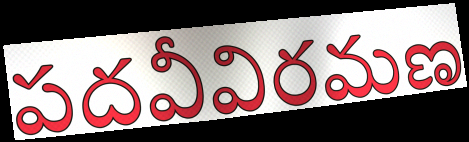
పదవీవిరమణ